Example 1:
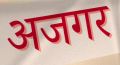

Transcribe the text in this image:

अजगर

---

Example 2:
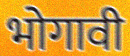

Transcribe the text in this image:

भोगावी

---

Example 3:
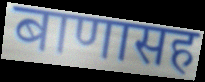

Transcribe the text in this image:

बाणासह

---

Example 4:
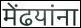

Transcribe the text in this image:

मेंढयांना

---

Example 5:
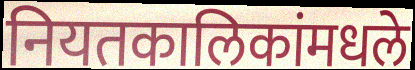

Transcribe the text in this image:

नियतकालिकांमधले